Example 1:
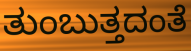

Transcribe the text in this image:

ತುಂಬುತ್ತದಂತೆ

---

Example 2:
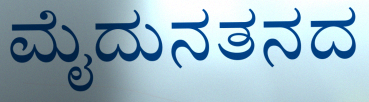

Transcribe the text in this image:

ಮೈದುನತನದ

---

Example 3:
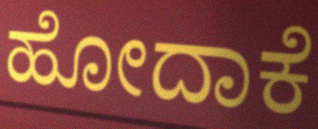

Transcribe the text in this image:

ಹೋದಾಕೆ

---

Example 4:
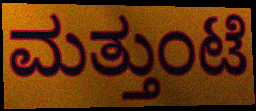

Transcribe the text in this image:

ಮತ್ತುಂಟೆ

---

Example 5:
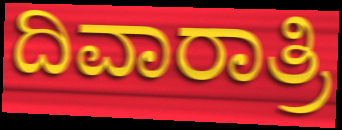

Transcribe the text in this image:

ದಿವಾರಾತ್ರಿ